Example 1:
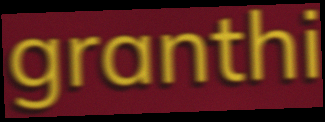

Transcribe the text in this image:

granthi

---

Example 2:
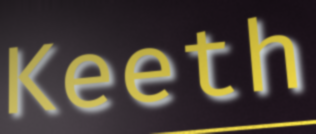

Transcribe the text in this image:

Keeth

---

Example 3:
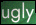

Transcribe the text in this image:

ugly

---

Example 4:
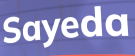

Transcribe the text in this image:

Sayeda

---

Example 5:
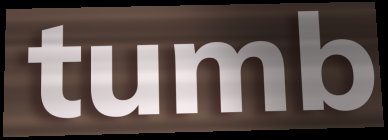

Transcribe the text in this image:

tumb